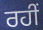
ਰਹੀਂ